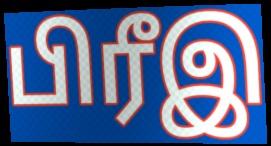
பிரீஇ